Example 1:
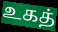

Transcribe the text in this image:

உகத்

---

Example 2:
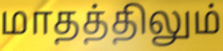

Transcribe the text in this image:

மாதத்திலும்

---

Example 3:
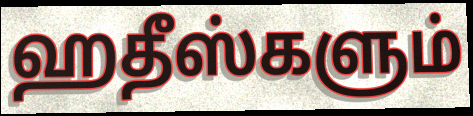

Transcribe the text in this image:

ஹதீஸ்களும்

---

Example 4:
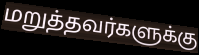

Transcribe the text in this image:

மறுத்தவர்களுக்கு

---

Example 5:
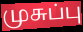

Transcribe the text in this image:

முசுப்பு